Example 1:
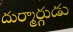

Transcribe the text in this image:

దుర్మార్గుడు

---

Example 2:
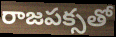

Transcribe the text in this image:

రాజపక్సతో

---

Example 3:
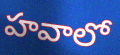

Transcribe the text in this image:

హవాలో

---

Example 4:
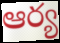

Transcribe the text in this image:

ఆర్య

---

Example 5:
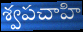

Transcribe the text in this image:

శ్వపచాహి